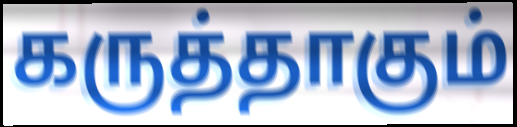
கருத்தாகும்